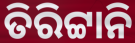
ତିରିଟ୍ଟାନି